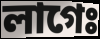
লাগেঃ